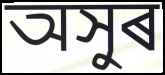
অসুৰ